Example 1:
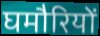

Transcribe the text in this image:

घमौरियों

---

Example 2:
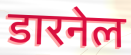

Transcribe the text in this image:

डारनेल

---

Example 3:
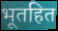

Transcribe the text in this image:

भूतहित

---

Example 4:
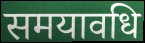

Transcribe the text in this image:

समयावधि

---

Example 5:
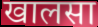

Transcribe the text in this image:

खालसा